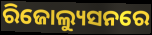
ରିଜୋଲ୍ୟୁସନରେ